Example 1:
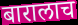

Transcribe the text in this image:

बारालाच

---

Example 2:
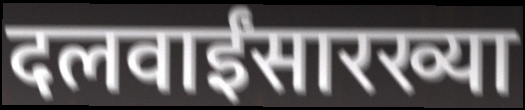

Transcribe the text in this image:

दलवाईंसारख्या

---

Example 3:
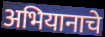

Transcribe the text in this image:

अभियानाचे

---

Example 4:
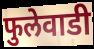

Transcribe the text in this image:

फुलेवाडी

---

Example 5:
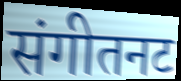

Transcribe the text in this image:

संगीतनट